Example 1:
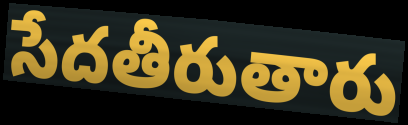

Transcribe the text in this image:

సేదతీరుతారు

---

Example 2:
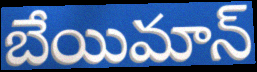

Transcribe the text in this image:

బేయిమాన్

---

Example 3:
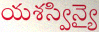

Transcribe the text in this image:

యశస్విన్యై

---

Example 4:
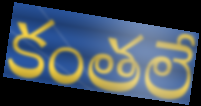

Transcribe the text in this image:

కంతలే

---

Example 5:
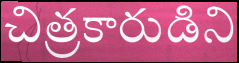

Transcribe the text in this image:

చిత్రకారుడిని